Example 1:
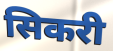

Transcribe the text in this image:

सिकरी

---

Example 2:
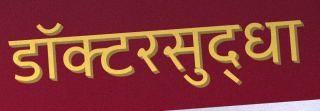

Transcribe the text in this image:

डॉक्टरसुद्धा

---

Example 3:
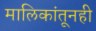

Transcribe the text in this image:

मालिकांतूनही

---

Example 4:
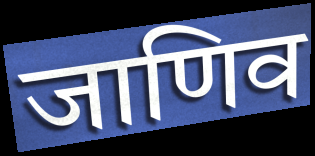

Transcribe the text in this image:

जाणिव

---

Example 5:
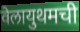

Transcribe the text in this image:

वेलायुथमची